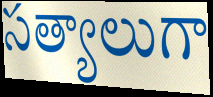
సత్యాలుగా